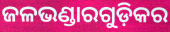
ଜଳଭଣ୍ଡାରଗୁଡ଼ିକର